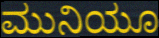
ಮುನಿಯೂ